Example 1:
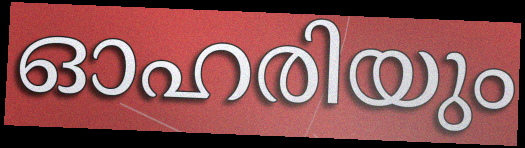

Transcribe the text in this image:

ഓഹരിയും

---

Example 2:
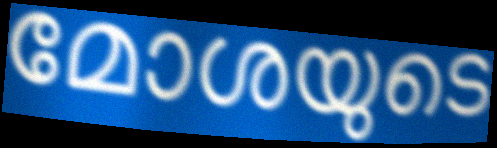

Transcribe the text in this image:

മോശയുടെ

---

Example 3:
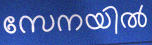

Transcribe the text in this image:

സേനയിൽ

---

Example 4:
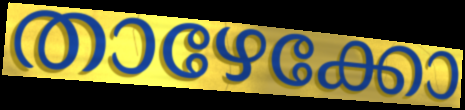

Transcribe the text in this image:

താഴേക്കോ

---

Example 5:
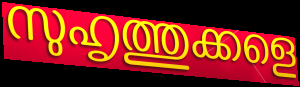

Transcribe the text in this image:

സുഹൃത്തുക്കളെ